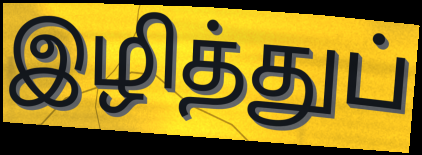
இழித்துப்